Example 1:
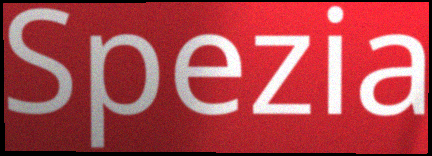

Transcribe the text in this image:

Spezia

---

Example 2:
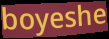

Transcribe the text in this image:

boyeshe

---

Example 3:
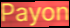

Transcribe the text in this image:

Payon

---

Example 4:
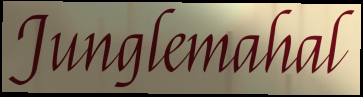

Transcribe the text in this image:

Junglemahal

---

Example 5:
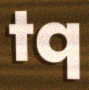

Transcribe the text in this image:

tq